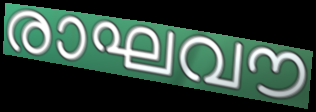
രാഘവൗ